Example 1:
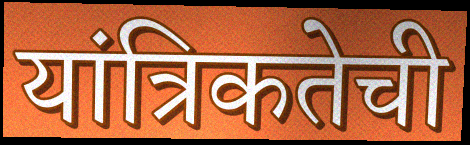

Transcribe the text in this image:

यांत्रिकतेची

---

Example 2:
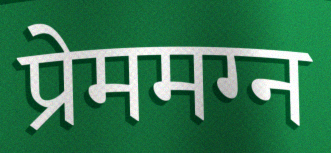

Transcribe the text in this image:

प्रेममग्न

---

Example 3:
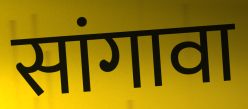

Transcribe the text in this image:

सांगावा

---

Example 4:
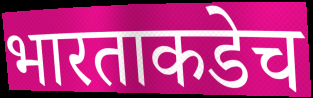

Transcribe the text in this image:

भारताकडेच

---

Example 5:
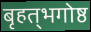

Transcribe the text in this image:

बृहत्‌भगोष्ठ